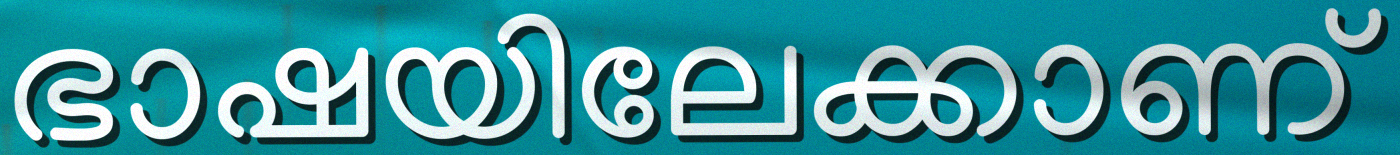
ഭാഷയിലേക്കാണ്